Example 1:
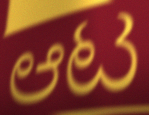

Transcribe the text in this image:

ಆಟ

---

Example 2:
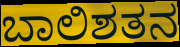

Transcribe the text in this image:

ಬಾಲಿಶತನ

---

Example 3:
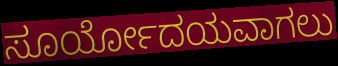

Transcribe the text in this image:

ಸೂರ್ಯೋದಯವಾಗಲು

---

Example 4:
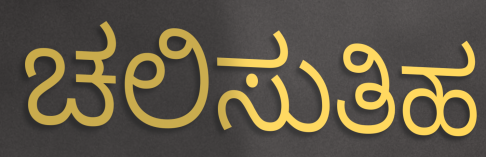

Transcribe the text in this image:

ಚಲಿಸುತಿಹ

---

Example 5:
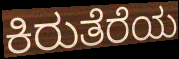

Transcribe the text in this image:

ಕಿರುತೆರೆಯ